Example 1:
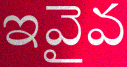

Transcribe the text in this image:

ఇవైవ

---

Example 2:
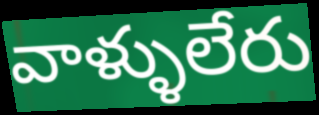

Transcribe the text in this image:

వాళ్ళులేరు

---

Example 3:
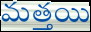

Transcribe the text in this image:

మత్తయి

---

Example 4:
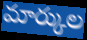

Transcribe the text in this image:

మార్కుల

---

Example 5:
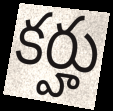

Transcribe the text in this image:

కర్హు